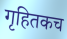
गृहितकच